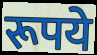
रूपये